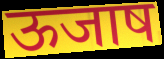
ऊजाष